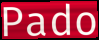
Pado